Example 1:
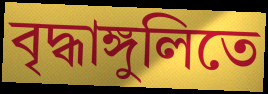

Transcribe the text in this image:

বৃদ্ধাঙ্গুলিতে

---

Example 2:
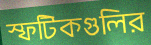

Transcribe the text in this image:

স্ফটিকগুলির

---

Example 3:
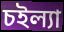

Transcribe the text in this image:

চইল্যা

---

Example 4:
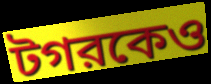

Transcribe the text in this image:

টগরকেও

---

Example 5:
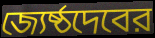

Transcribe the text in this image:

জ্যেষ্ঠদেবের